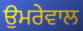
ਉਮਰੇਵਾਲ